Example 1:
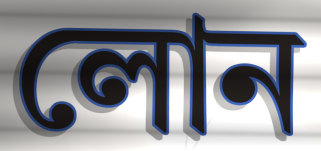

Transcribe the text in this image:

লোন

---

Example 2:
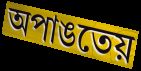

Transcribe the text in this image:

অপাঙতেয়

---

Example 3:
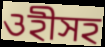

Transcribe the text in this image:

ওহীসহ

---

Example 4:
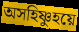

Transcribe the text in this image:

অসহিষ্ণুহয়ে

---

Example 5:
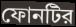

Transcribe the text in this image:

ফোনটির